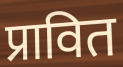
प्रावित